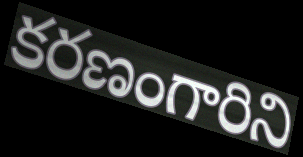
కరణంగారిని